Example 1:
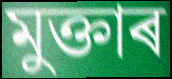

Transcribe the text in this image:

মুক্তাৰ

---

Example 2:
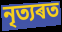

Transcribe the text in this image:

নৃত্যৰত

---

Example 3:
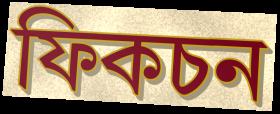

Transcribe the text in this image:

ফিকচন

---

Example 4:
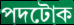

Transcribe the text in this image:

পদটোক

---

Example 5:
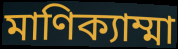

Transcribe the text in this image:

মাণিক্যাম্মা